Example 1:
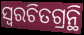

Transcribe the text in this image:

ସ୍ଵରଚିତଗ୍ରନ୍ଥି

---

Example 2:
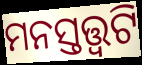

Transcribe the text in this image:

ମନସ୍ତତ୍ତ୍ୱଟି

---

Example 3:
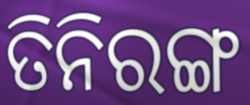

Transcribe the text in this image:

ତିନିରଙ୍ଗ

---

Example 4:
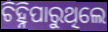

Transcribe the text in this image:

ଚିହ୍ନିପାରୁଥିଲେ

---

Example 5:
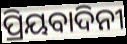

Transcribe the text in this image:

ପ୍ରିୟବାଦିନୀ